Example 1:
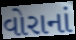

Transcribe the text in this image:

વોરાનાં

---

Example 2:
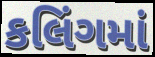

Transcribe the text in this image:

કલિંગમાં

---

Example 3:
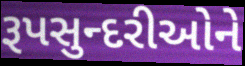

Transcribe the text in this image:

રૂપસુન્દરીઓને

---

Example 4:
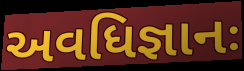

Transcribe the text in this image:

અવધિજ્ઞાનઃ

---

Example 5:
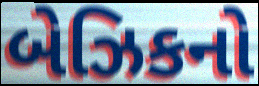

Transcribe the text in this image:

બેઝિકનો